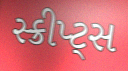
સ્ક્રીપ્ટ્સ